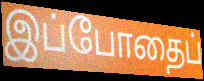
இப்போதைப்